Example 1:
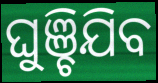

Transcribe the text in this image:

ଘୁଞ୍ଚିଯିବ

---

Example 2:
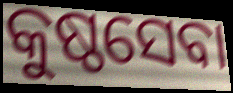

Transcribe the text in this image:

କୁଷ୍ଠସେବା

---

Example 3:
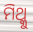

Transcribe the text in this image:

ମିଥ୍କୁ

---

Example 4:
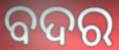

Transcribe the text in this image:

ବଦର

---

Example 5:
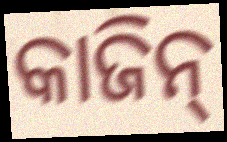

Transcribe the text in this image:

କାଜିନ୍